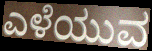
ಎಳೆಯುವ